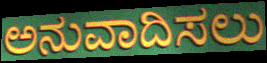
ಅನುವಾದಿಸಲು